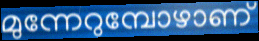
മുന്നേറുമ്പോഴാണ്